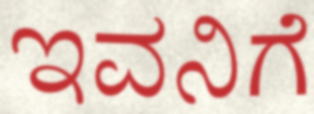
ಇವನಿಗೆ